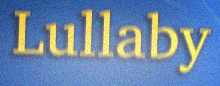
Lullaby